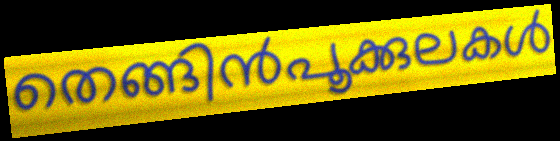
തെങ്ങിൻപൂക്കുലകൾ